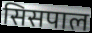
सिसपाल